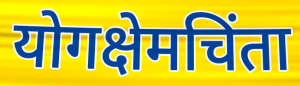
योगक्षेमचिंता